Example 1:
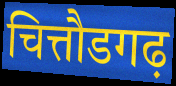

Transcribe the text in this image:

चित्तौडगढ़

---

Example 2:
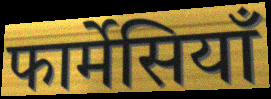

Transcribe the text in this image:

फार्मेसियाँ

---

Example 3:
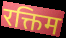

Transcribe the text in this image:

रक्तिम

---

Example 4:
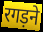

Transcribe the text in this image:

रगड़ने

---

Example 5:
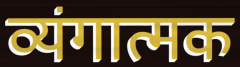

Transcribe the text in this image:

व्यंगात्मक